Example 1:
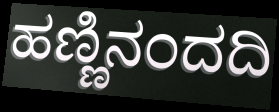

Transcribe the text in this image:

ಹಣ್ಣಿನಂದದಿ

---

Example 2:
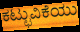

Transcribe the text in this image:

ಕಟ್ಟುವಿಕೆಯು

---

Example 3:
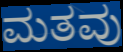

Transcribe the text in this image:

ಮತವು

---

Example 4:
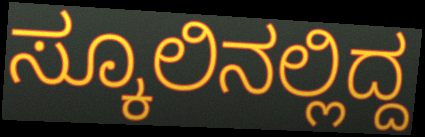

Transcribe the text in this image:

ಸ್ಕೂಲಿನಲ್ಲಿದ್ದ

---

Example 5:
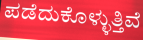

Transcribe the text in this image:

ಪಡೆದುಕೊಳ್ಳುತ್ತಿವೆ